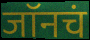
जॉनचं